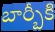
బార్బీకి